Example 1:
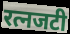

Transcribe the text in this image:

रत्नजटी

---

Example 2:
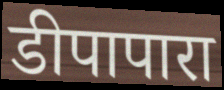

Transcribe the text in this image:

डीपापारा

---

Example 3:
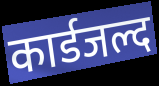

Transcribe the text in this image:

कार्डजल्द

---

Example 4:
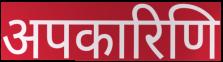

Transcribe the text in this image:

अपकारिणि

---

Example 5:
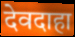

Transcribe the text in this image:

देवदाहा